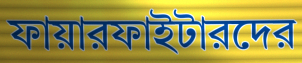
ফায়ারফাইটারদের